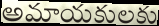
అమాయకులకు